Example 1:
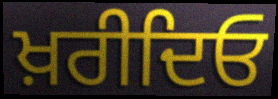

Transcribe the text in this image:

ਖ਼ਰੀਦਿਓ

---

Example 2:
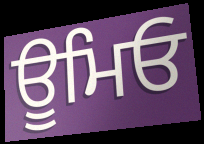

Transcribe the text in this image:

ਊਮਿਓ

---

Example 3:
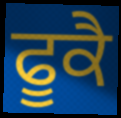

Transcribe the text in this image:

ਫੂਕੈ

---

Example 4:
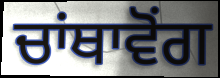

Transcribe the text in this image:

ਚਾਂਥਾਵੋਂਗ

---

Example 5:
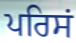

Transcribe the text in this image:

ਪਰਿਸਂ